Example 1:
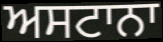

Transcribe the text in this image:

ਅਸਟਾਨਾ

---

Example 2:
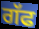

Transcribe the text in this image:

ਗੱਫ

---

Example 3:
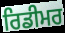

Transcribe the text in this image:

ਰਿਡੀਮਰ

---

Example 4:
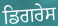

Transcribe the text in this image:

ਡਿਗਰੇਸ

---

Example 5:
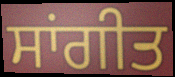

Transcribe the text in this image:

ਸਾਂਗੀਤ